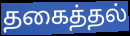
தகைத்தல்